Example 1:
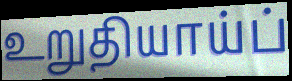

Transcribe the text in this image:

உறுதியாய்ப்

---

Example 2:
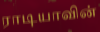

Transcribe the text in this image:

ராடியாவின்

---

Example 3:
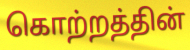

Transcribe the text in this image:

கொற்றத்தின்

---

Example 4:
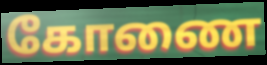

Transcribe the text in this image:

கோணை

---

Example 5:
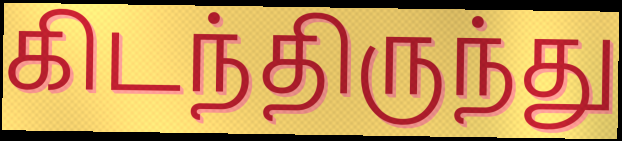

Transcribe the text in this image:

கிடந்திருந்து